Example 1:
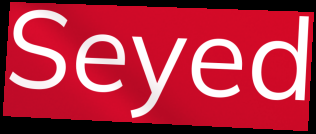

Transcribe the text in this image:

Seyed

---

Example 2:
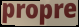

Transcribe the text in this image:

propre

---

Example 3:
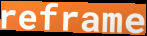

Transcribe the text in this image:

reframe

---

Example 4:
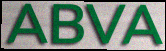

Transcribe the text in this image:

ABVA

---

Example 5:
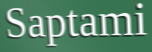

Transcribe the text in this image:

Saptami